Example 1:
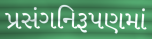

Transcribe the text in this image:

પ્રસંગનિરૂપણમાં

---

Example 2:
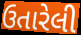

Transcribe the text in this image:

ઉતારેલી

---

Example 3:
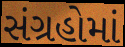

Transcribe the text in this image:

સંગ્રહોમાં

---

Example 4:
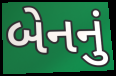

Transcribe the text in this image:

બેનનું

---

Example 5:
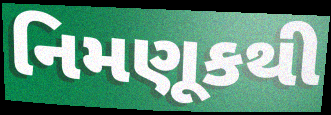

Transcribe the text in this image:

નિમણૂકથી